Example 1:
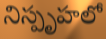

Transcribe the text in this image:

నిస్పృహలో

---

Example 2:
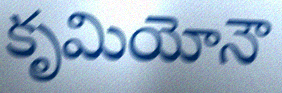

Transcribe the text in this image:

కృమియోనౌ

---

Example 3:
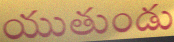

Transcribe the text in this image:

యుతుండు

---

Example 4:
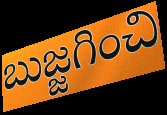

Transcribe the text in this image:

బుజ్జగించి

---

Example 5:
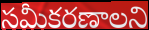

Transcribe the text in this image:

సమీకరణాలని